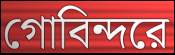
গোবিন্দরে